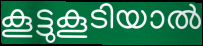
കൂട്ടുകൂടിയാൽ